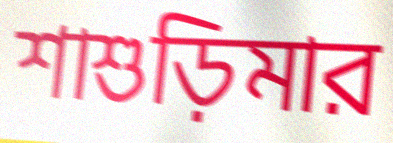
শাশুড়িমার